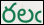
రలఁ